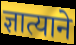
ज्ञात्याने